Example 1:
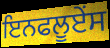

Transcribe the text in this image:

ਇਨਫਲੂਏਂਸ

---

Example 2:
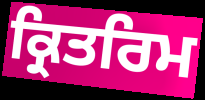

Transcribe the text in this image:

ਕ੍ਰਿਤਰਿਮ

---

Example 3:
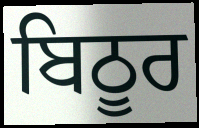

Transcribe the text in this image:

ਬਿਠੂਰ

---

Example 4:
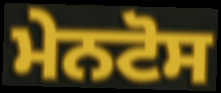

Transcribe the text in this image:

ਮੇਨਟੋਸ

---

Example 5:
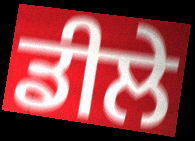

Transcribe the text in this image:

ਡੀਲੇ